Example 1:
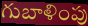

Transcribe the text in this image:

గుబాళింపు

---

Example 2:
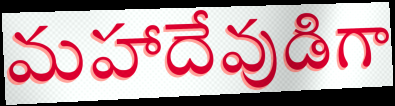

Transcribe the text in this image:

మహాదేవుడిగా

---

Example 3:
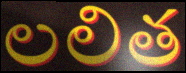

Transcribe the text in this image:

లలిత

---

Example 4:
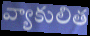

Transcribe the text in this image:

వ్యాకులిత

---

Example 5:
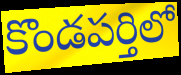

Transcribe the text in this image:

కొండపర్తిలో